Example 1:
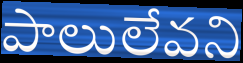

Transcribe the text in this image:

పాలులేవని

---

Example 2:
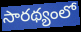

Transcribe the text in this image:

సారథ్యంలో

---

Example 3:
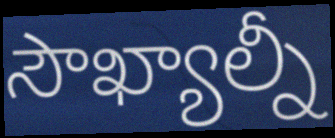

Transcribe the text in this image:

సౌఖ్యాల్నీ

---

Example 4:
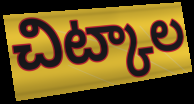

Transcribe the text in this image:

చిట్కాల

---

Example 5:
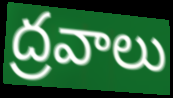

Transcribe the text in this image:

ద్రవాలు